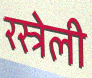
रस्त्रेली